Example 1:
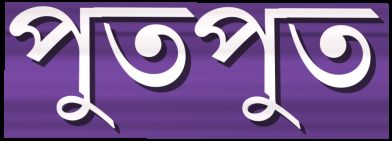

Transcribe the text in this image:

পুতপুত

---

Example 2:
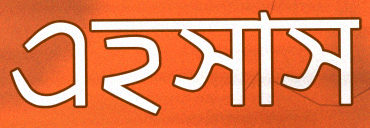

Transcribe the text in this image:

এহসাস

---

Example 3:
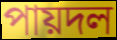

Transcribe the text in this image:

পায়দল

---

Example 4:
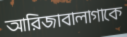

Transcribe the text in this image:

আরিজাবালাগাকে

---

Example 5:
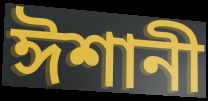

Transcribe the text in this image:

ঈশানী